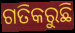
ଗତିକରୁଛି